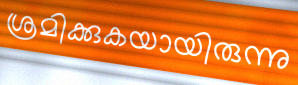
ശ്രമിക്കുകയായിരുന്നു